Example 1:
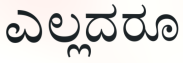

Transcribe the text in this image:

ಎಲ್ಲದರೂ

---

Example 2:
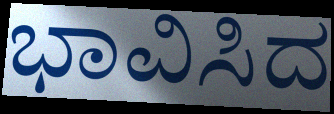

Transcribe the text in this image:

ಭಾವಿಸಿದ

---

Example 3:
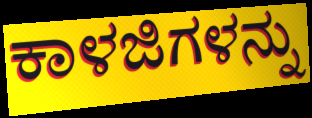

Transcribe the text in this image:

ಕಾಳಜಿಗಳನ್ನು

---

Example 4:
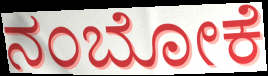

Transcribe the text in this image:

ನಂಬೋಕೆ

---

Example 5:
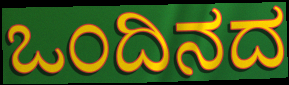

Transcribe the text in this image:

ಒಂದಿನದ